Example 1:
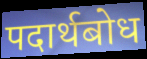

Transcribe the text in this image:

पदार्थबोध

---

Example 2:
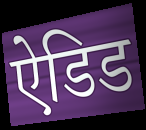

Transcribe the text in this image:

ऐडिड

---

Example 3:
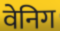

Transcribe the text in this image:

वेनिग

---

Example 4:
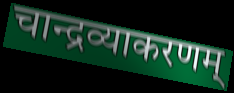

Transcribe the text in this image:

चान्द्रव्याकरणम्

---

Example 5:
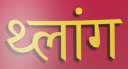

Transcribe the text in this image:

थ्लांग